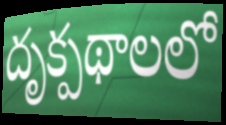
దృక్పథాలలో